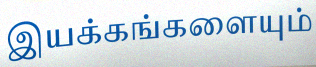
இயக்கங்களையும்